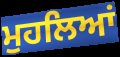
ਮੁਹਲਿਆਂ